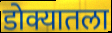
डोक्यातला